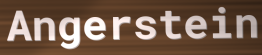
Angerstein